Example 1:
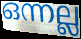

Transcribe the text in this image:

ഒന്നല്ല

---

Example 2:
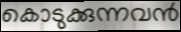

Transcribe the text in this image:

കൊടുക്കുന്നവൻ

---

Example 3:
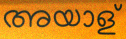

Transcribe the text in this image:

അയാള്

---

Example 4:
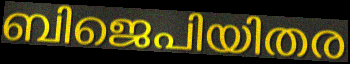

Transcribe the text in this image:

ബിജെപിയിതര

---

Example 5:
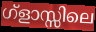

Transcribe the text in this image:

ഗ്ളാസ്സിലെ